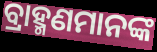
ବ୍ରାହ୍ମଣମାନଙ୍କ